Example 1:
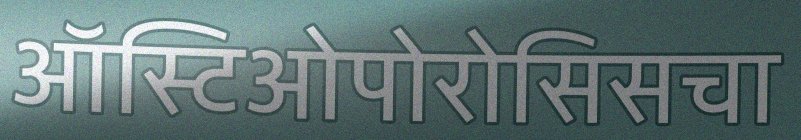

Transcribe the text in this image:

ऑस्टिओपोरोसिसचा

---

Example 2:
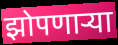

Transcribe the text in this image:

झोपणार्‍या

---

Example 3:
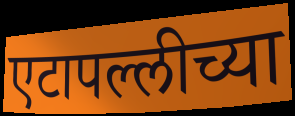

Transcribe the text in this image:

एटापल्लीच्या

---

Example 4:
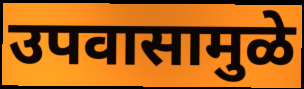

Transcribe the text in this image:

उपवासामुळे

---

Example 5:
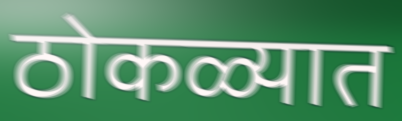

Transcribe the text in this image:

ठोकळ्यात